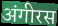
अंगीरस